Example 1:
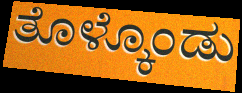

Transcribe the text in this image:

ತೊಳ್ಕೊಂಡು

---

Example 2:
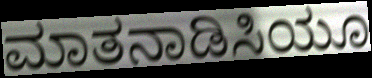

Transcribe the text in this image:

ಮಾತನಾಡಿಸಿಯೂ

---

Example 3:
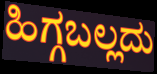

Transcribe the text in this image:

ಹಿಗ್ಗಬಲ್ಲದು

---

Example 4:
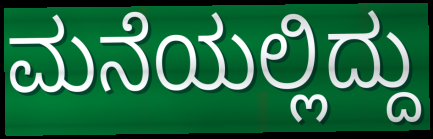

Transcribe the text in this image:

ಮನೆಯಲ್ಲಿದ್ದು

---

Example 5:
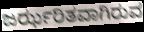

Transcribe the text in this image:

ಜರ್ಝರಿತವಾಗಿರುವ